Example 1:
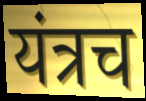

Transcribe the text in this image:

यंत्रच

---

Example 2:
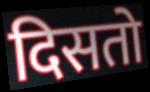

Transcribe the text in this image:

दिसतो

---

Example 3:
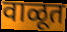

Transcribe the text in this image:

वाळूत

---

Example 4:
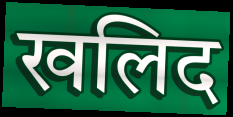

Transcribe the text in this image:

खलिद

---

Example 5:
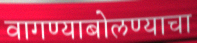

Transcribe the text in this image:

वागण्याबोलण्याचा